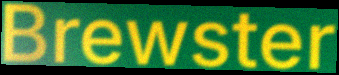
Brewster